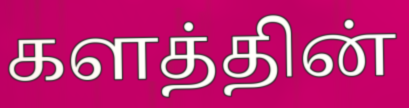
களத்தின்